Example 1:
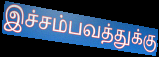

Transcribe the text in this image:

இச்சம்பவத்துக்கு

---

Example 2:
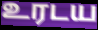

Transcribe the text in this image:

உரடய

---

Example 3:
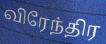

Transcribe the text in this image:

விரேந்திர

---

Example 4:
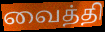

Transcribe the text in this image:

வைத்தி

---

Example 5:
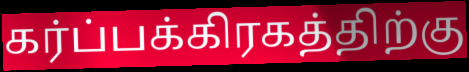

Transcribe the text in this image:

கர்ப்பக்கிரகத்திற்கு